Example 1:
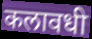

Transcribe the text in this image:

कलावधी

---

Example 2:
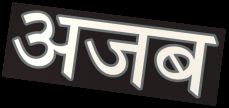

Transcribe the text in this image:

अजब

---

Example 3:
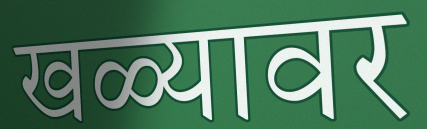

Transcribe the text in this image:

खळ्यावर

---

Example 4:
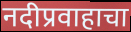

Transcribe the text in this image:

नदीप्रवाहाचा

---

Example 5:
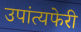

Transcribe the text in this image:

उपांत्यफेरी